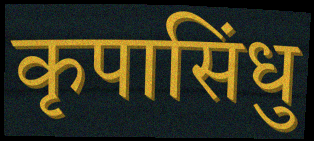
कृपासिंधु